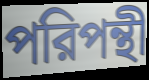
পরিপন্থী